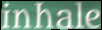
inhale